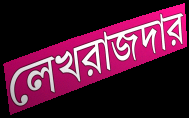
লেখরাজদার